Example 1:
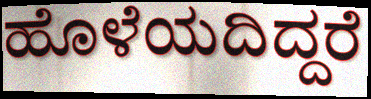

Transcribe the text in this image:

ಹೊಳೆಯದಿದ್ದರೆ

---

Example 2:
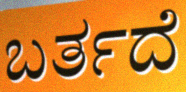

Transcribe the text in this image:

ಬರ್ತದೆ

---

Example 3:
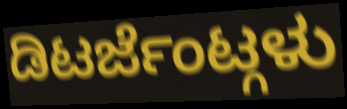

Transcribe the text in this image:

ಡಿಟರ್ಜೆಂಟ್ಗಳು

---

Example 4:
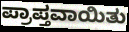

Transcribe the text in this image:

ಪ್ರಾಪ್ತವಾಯಿತು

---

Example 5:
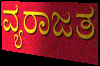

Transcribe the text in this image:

ವ್ಯರಾಜತ